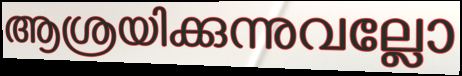
ആശ്രയിക്കുന്നുവല്ലോ